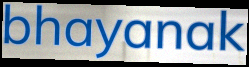
bhayanak